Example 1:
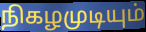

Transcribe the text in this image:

நிகழமுடியும்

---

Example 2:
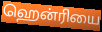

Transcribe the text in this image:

ஹென்ரியை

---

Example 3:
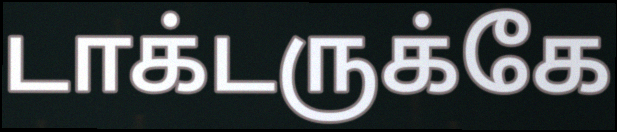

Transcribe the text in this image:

டாக்டருக்கே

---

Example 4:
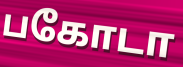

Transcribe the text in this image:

பகோடா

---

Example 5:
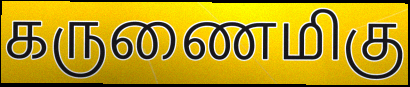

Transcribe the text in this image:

கருணைமிகு